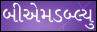
બીએમડબ્લ્યુ